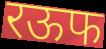
रऊफ